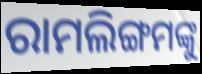
ରାମଲିଙ୍ଗମଙ୍କୁ